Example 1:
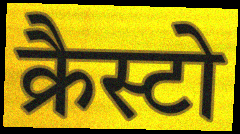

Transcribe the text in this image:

क्रैस्टो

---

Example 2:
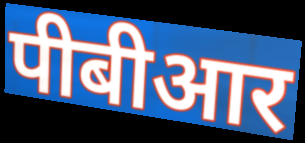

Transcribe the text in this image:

पीबीआर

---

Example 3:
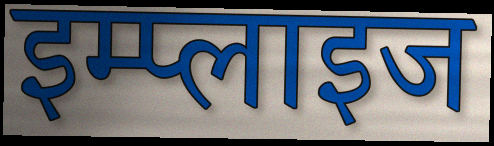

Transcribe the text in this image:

इम्प्लाइज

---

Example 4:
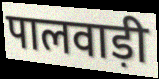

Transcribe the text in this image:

पालवाड़ी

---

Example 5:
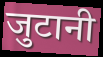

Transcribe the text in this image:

जुटानी